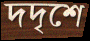
দদৃশে